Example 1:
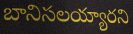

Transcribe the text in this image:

బానిసలయ్యారని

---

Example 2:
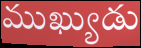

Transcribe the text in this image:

ముఖ్యుడు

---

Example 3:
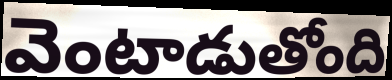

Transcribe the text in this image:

వెంటాడుతోంది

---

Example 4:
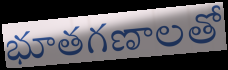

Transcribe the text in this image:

భూతగణాలతో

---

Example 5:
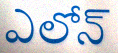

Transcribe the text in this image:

ఎలోన్